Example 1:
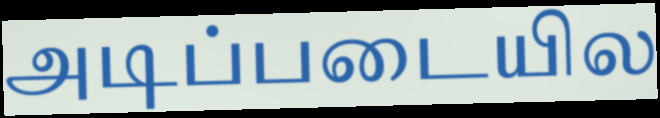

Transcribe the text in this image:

அடிப்படையில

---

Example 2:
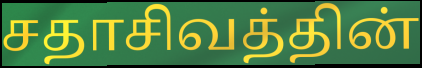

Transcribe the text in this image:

சதாசிவத்தின்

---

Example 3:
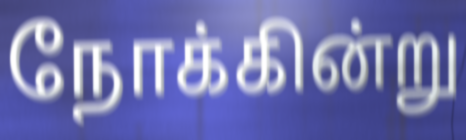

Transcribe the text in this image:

நோக்கின்று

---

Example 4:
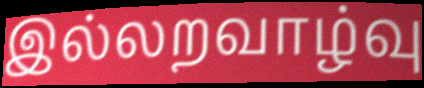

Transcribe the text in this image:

இல்லறவாழ்வு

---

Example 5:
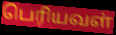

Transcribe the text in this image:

பெரியவள்